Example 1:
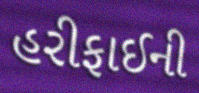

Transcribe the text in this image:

હરીફાઈની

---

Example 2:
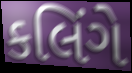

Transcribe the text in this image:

કલિંગે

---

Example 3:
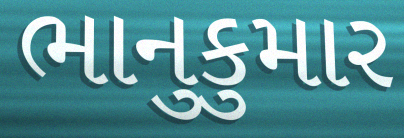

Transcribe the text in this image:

ભાનુકુમાર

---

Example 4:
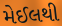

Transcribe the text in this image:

મેઈલથી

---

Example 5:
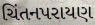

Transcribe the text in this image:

ચિંતનપરાયણ